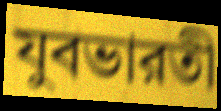
যুবভারতী